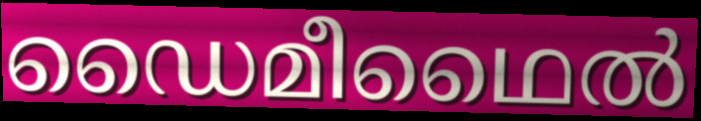
ഡൈമീഥൈൽ